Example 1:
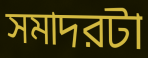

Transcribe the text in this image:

সমাদরটা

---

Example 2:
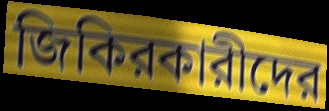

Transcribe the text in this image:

জিকিরকারীদের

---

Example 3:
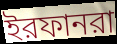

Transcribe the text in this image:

ইরফানরা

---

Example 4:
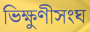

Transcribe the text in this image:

ভিক্ষুণীসংঘ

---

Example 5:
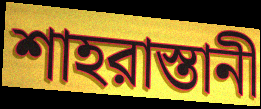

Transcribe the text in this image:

শাহরাস্তানী